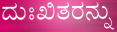
ದುಃಖಿತರನ್ನು